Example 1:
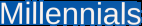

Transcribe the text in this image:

Millennials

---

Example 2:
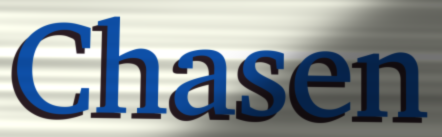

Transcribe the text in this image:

Chasen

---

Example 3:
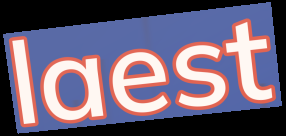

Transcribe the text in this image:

laest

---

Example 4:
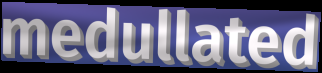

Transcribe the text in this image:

medullated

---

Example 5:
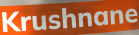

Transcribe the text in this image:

Krushnane